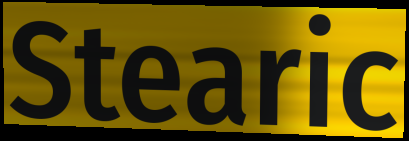
Stearic